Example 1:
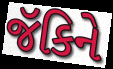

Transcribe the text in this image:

જૅકિને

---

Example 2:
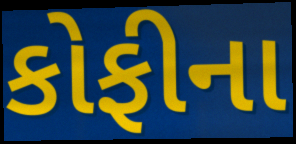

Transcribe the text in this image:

કોફીના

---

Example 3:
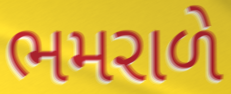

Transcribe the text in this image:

ભમરાળે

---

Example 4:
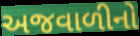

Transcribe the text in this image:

અજવાળીનો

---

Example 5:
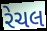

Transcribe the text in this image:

રેચલ